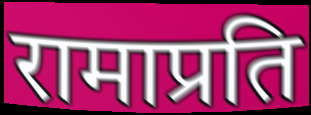
रामाप्रति